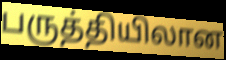
பருத்தியிலான